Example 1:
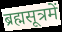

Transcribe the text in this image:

ब्रह्मसूत्रमें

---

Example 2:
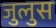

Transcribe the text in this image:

जुलुस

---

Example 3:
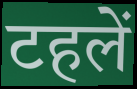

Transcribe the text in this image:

टहलें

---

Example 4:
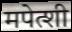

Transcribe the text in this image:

मपेत्शी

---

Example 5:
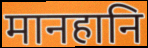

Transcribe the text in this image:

मानहानि